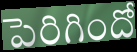
పెరిగిందో